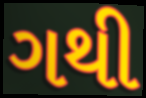
ગથી